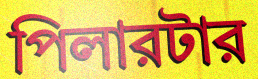
পিলারটার